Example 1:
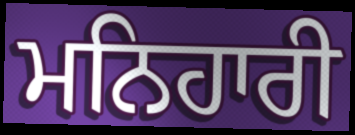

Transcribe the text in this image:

ਮਨਿਹਾਰੀ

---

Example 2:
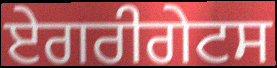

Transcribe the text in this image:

ਏਗਰੀਗੇਟਸ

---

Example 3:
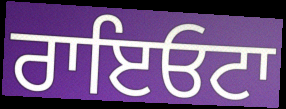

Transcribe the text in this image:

ਰਾਇਓਟਾ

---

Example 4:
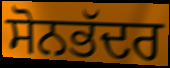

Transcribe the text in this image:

ਸੋਨਭੱਦਰ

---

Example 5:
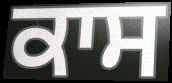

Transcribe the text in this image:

ਕਾਸ